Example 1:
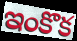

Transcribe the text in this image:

ఇంకొక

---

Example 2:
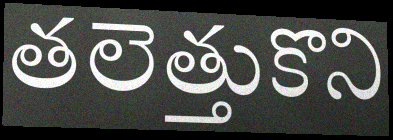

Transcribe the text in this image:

తలెత్తుకొని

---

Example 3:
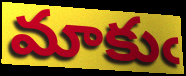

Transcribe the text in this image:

మాకుఁ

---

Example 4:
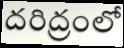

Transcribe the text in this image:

దరిద్రంలో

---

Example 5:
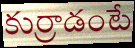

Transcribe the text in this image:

కుర్రాడంటే